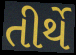
તીર્થે